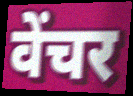
वेंचर